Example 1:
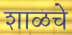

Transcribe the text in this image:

शाळचे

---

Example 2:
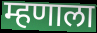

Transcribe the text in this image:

म्‍हणाला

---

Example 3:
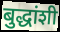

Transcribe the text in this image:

बुद्धांशी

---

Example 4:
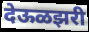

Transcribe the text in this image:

देऊळझरी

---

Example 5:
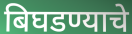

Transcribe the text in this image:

बिघडण्याचे